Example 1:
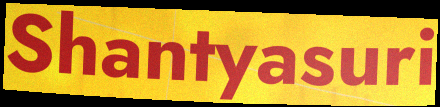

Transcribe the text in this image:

Shantyasuri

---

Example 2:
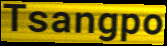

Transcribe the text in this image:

Tsangpo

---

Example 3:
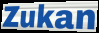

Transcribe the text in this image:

Zukan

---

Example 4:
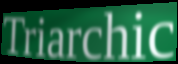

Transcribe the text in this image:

Triarchic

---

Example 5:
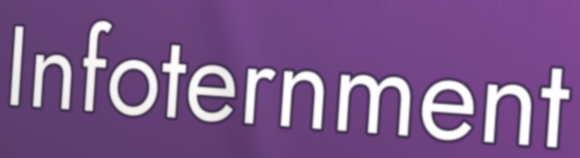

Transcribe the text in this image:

Infoternment